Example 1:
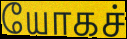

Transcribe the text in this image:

யோகச்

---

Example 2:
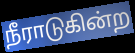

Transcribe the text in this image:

நீராடுகின்ற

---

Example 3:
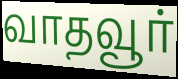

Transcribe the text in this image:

வாதவூர்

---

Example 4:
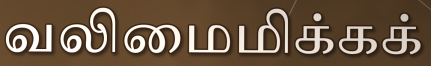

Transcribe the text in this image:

வலிமைமிக்கக்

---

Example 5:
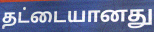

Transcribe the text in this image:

தட்டையானது